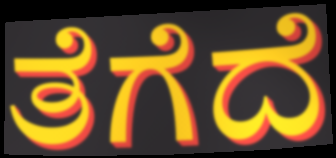
ತೆಗೆದೆ